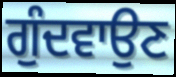
ਗੁੰਦਵਾਉਣ